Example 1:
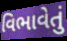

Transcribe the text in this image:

વિભાવેતું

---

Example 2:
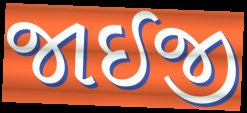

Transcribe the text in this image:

જાઈજી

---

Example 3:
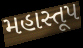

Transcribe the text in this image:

મહાસ્તૂપ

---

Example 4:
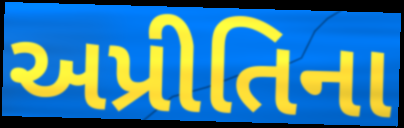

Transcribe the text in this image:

અપ્રીતિના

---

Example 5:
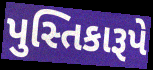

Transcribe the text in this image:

પુસ્તિકારૂપે